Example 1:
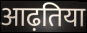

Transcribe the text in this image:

आढ़तिया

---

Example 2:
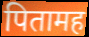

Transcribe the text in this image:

पितामह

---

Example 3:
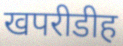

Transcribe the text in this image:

खपरीडीह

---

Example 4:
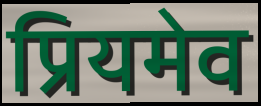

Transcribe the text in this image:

प्रियमेव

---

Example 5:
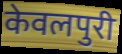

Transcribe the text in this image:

केवलपुरी